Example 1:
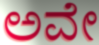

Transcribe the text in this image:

ಅವೇ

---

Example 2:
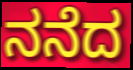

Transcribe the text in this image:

ನನೆದ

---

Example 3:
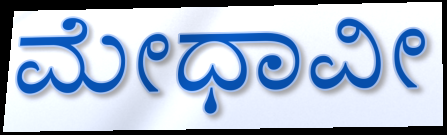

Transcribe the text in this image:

ಮೇಧಾವೀ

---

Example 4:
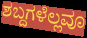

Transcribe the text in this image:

ಶಬ್ದಗಳೆಲ್ಲವೂ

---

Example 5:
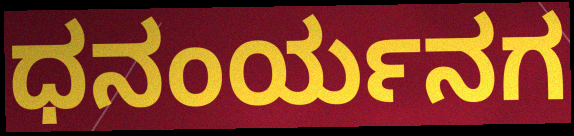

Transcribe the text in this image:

ಧನಂರ್ಯನಗ